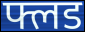
फ्लड